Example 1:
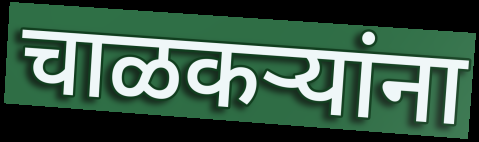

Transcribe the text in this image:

चाळकऱ्यांना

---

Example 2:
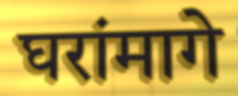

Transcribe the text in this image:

घरांमागे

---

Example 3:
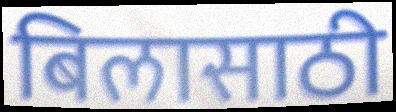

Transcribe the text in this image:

बिलासाठी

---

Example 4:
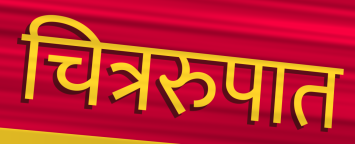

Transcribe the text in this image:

चित्ररुपात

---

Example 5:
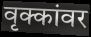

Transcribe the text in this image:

वृक्कांवर